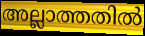
അല്ലാത്തതിൽ